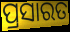
ପ୍ରସାରତ